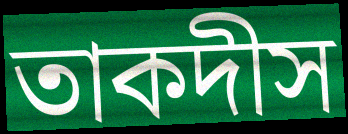
তাকদীস